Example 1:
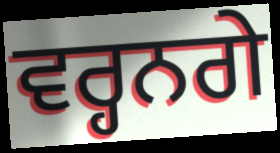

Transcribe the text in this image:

ਵਰ੍ਹਨਗੇ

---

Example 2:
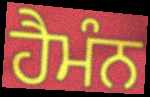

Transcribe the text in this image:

ਹੈਮੰਨ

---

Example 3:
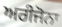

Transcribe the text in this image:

ਅਰੀਜੋਨਾ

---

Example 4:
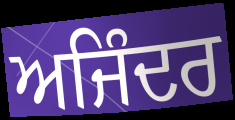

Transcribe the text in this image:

ਅਜਿੰਦਰ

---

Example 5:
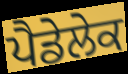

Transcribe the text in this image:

ਪੈਡੇਲੇਕ